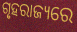
ଗୃହରାଜ୍ୟରେ